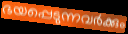
ഭയപ്പെടുന്നവർക്കും